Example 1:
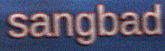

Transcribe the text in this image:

sangbad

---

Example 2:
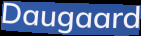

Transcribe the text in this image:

Daugaard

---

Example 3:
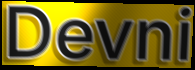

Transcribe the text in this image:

Devni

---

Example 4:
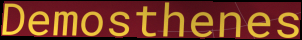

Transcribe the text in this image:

Demosthenes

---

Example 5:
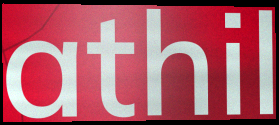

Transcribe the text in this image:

athil